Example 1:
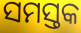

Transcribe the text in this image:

ସମସ୍ତକ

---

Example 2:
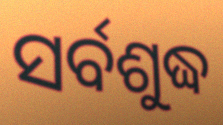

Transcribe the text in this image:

ସର୍ବଶୁଦ୍ଧ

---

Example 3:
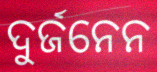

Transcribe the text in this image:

ଦୁର୍ଜନେନ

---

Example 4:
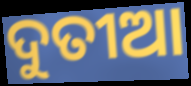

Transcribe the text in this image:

ଦୁତୀଆ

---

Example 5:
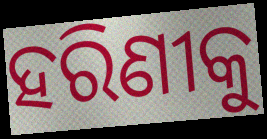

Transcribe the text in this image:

ହରିଣୀକୁ